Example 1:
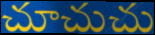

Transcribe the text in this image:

చూచుచు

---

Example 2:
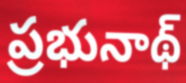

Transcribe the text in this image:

ప్రభునాథ్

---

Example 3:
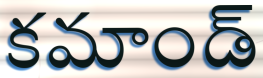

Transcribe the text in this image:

కమాండ్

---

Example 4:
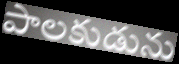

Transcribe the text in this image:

పాలకుడును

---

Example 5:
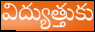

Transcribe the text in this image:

విద్యుత్తుకు